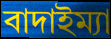
বাদাইম্যা